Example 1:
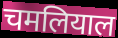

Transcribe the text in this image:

चमलियाल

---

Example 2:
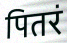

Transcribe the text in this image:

पितरं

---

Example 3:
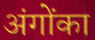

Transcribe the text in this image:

अंगोंका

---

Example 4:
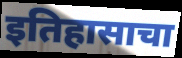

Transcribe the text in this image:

इतिहासाचा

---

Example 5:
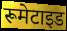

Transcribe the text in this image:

रूमेटाइड